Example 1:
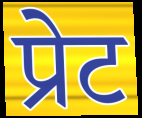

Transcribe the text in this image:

प्रेट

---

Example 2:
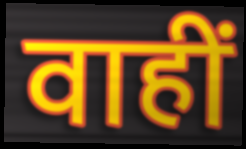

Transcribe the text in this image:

वाहीं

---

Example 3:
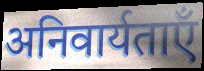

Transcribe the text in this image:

अनिवार्यताएँ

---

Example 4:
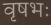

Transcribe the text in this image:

वृषभः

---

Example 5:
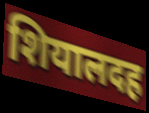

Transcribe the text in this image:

शियालदह